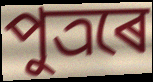
পুত্ৰৰে